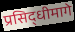
प्रसिद्धीमागे